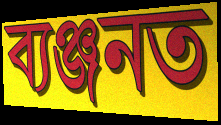
ব্যঞ্জনত